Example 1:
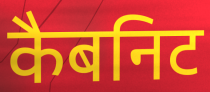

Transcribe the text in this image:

कैबनिट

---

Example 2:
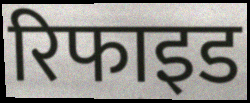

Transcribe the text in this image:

रिफाइड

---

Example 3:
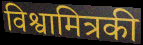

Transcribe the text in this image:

विश्वामित्रकी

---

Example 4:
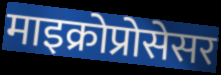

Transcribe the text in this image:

माइक्रोप्रोसेसर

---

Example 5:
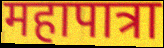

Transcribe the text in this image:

महापात्रा